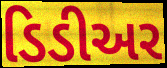
ડિડીઅર